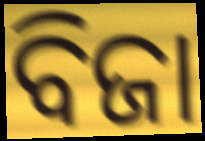
ବିଜା